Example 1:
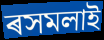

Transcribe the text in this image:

ৰসমলাই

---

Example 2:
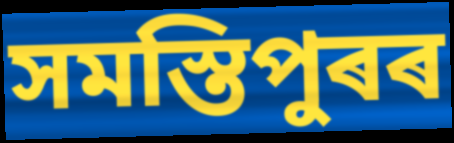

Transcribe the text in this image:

সমস্তিপুৰৰ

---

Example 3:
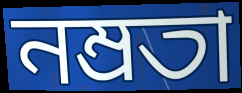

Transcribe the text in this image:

নম্ৰতা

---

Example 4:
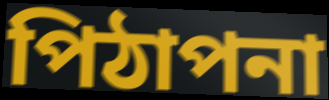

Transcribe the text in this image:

পিঠাপনা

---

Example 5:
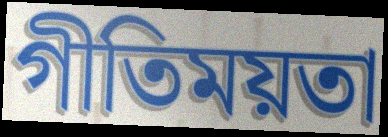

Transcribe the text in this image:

গীতিময়তা